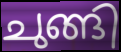
ചുങ്ങി